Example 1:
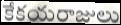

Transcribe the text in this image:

కేకయరాజులు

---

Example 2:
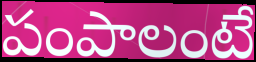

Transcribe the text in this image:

పంపాలంటే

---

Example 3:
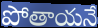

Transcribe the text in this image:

పోతాయనే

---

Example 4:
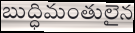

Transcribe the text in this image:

బుద్ధిమంతులైన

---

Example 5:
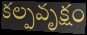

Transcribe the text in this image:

కల్పవృక్షం